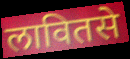
लावितसे